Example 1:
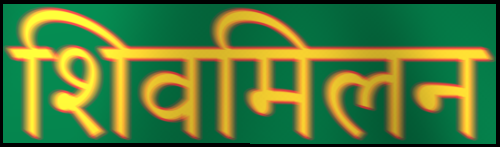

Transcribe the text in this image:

शिवमिलन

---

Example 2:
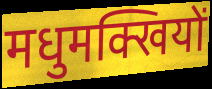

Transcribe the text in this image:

मधुमक्खियों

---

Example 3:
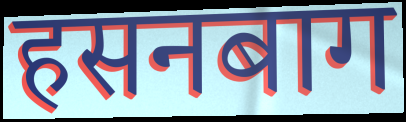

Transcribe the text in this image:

हसनबाग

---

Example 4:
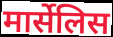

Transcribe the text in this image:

मार्सेलिस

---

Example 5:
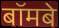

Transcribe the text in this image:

बॉमबे